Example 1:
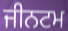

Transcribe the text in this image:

ਜੀਨਟਮ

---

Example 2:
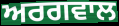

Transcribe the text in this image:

ਅਰਗਵਾਲ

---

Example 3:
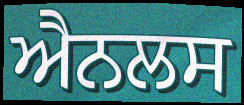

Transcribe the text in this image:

ਐਨਲਸ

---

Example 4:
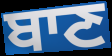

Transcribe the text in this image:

ਬਾਣ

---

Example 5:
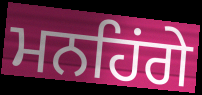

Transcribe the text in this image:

ਮਨਹਿਂਗੇ